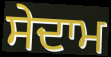
ਸੇਦਾਮ